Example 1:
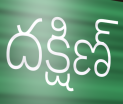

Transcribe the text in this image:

దక్షిణ్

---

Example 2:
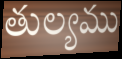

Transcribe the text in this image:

తుల్యము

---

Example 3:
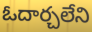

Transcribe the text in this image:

ఓదార్చలేని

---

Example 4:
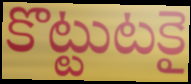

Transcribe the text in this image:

కొట్టుటకై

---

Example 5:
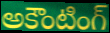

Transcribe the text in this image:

అకౌంటింగ్